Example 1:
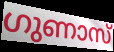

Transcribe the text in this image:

ഗുണാസ്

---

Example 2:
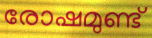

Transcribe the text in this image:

രോഷമുണ്ട്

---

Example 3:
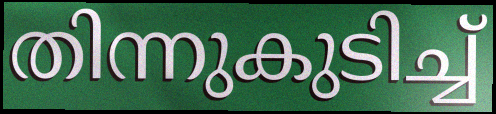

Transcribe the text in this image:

തിന്നുകുടിച്ച്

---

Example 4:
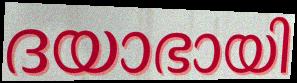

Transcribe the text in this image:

ദയാഭായി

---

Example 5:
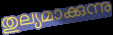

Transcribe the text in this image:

തുല്യമാക്കുന്നു